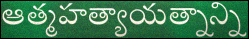
ఆత్మహత్యాయత్నాన్ని